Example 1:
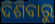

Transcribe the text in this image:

ଦିଶିବାରୁ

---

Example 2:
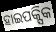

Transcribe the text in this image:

ହାଇପକ୍ସିକ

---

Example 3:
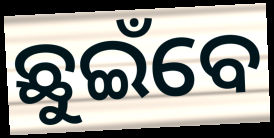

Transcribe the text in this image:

ଛୁଇଁବେ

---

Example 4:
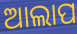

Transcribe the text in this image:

ଆଲାପ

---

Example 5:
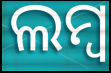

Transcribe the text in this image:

ଲମ୍ବ